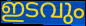
ഇടവും